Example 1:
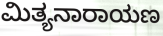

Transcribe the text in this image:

ಮಿತ್ಯನಾರಾಯಣ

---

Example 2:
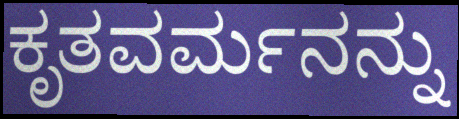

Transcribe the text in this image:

ಕೃತವರ್ಮನನ್ನು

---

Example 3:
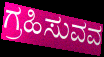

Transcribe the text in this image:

ಗ್ರಹಿಸುವವ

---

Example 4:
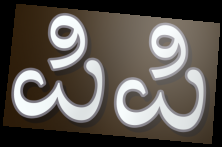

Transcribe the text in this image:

ಪಿಪಿ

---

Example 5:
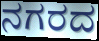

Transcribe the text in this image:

ನಗರದ